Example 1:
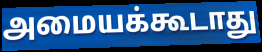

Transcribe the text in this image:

அமையக்கூடாது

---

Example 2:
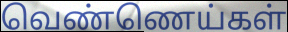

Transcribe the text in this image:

வெண்ணெய்கள்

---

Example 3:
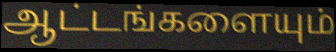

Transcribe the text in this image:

ஆட்டங்களையும்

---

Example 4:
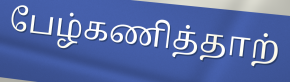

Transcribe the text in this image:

பேழ்கணித்தாற்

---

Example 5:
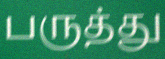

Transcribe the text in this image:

பருத்து